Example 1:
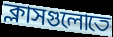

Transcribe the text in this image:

ক্লাসগুলোতে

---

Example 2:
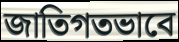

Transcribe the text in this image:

জাতিগতভাবে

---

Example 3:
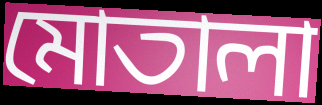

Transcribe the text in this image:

মোতালা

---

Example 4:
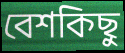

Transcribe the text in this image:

বেশকিছু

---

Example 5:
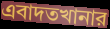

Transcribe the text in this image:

এবাদতখানার